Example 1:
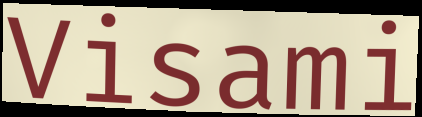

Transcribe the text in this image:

Visami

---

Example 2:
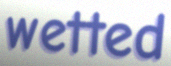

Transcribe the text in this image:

wetted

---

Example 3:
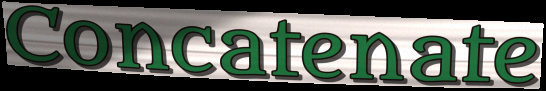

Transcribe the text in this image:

Concatenate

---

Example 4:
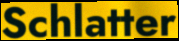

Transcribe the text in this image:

Schlatter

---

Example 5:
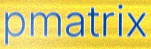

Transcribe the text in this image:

pmatrix